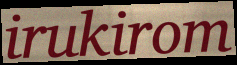
irukirom